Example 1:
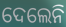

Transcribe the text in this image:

ଦେଲେନି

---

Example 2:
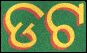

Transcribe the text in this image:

ଡଟ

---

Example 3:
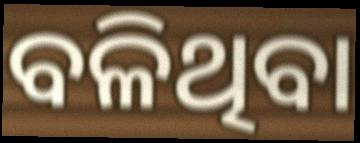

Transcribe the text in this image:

ବଳିଥିବା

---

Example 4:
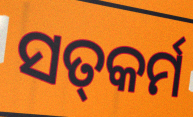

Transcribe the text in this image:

ସତ୍‍କର୍ମ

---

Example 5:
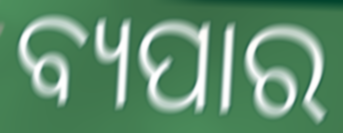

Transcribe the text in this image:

ବ୍ୟପାର